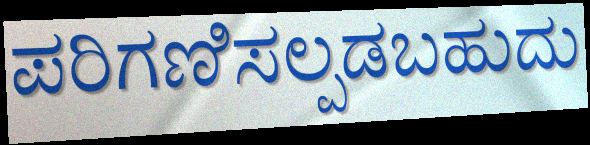
ಪರಿಗಣಿಸಲ್ಪಡಬಹುದು